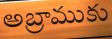
అబ్రాముకు